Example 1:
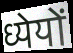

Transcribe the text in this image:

ध्येयों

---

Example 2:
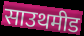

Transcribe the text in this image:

साउथमीड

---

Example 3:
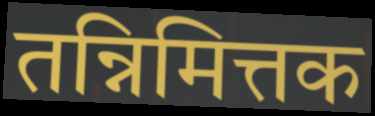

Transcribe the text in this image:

तन्निमित्तक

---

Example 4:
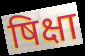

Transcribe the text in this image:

षिक्षा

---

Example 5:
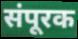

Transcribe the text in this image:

संपूरक